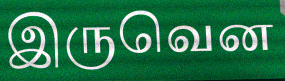
இருவென